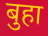
बुहा